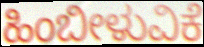
ಹಿಂಬೀಳುವಿಕೆ